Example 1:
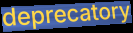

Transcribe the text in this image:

deprecatory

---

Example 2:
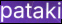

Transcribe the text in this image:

pataki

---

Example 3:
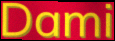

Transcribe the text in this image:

Dami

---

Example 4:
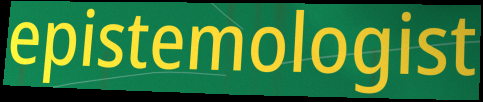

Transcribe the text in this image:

epistemologist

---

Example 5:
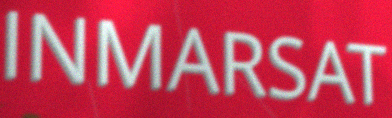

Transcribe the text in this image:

INMARSAT